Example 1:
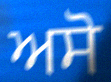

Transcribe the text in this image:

ਅਸੋ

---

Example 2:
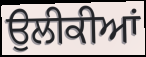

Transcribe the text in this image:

ਉਲੀਕੀਆਂ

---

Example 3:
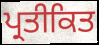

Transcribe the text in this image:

ਪ੍ਰਤੀਕਿਤ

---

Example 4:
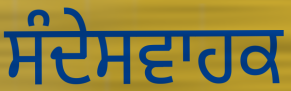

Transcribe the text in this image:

ਸੰਦੇਸਵਾਹਕ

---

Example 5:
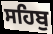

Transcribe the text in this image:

ਸਹਿਬੁ